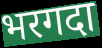
भरगदा